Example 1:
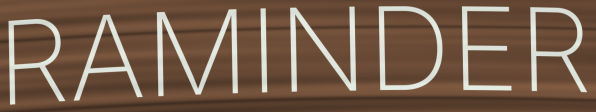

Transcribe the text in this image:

RAMINDER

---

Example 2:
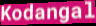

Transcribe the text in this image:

Kodangal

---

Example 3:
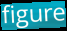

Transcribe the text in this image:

figure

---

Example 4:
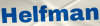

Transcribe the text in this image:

Helfman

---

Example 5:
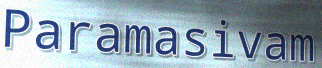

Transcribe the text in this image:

Paramasivam